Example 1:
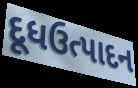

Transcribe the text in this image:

દૂધઉત્પાદન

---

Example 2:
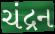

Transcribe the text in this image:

ચંદ્રન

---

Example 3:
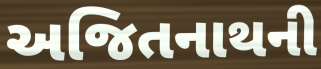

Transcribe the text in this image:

અજિતનાથની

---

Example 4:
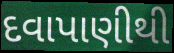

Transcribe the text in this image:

દવાપાણીથી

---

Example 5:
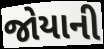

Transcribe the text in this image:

જોયાની